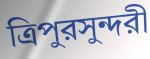
ত্রিপুরসুন্দরী